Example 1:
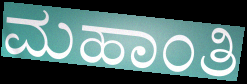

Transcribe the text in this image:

ಮಹಾಂತಿ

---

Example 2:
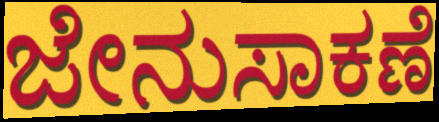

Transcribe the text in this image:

ಜೇನುಸಾಕಣೆ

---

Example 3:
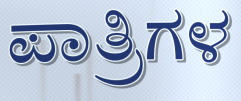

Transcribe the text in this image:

ಪಾತ್ರಿಗಳ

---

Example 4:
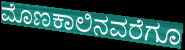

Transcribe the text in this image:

ಮೊಣಕಾಲಿನವರೆಗೂ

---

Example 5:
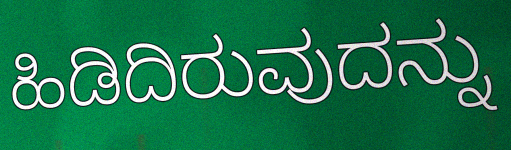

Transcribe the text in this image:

ಹಿಡಿದಿರುವುದನ್ನು